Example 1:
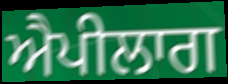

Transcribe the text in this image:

ਐਪੀਲਾਗ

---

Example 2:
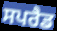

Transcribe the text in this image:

ਸਪਰੈਡ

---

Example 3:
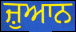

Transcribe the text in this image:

ਜ਼ੁਆਨ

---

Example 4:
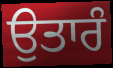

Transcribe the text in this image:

ਉਤਾਰੰ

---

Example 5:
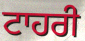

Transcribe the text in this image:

ਟਾਹਰੀ